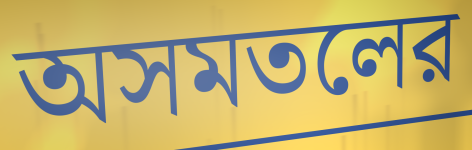
অসমতলের